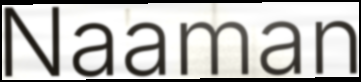
Naaman